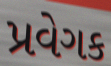
પ્રવેગક